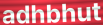
adhbhut